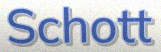
Schott